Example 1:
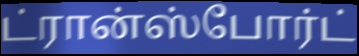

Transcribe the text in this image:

ட்ரான்ஸ்போர்ட்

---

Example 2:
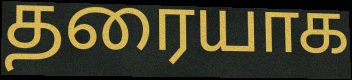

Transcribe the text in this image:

தரையாக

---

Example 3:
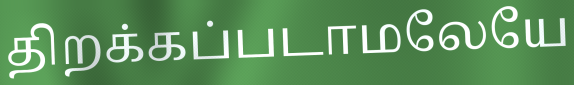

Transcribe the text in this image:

திறக்கப்படாமலேயே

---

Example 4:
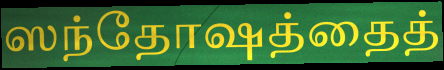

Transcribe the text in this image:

ஸந்தோஷத்தைத்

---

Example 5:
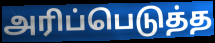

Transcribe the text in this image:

அரிப்பெடுத்த